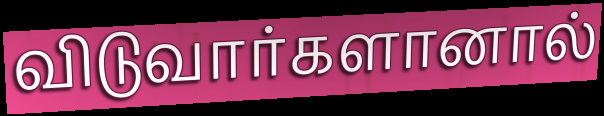
விடுவார்களானால்